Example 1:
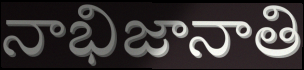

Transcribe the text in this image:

నాభిజానాతి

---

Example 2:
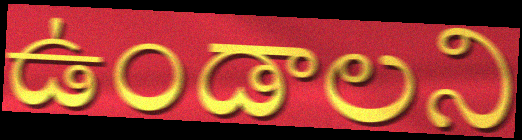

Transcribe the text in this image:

ఉండాలని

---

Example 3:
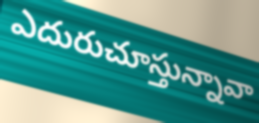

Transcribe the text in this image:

ఎదురుచూస్తున్నావా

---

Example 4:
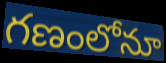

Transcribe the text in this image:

గణంలోనూ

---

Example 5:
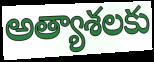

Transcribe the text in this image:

అత్యాశలకు